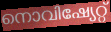
നൊവിഷ്യേറ്റ്